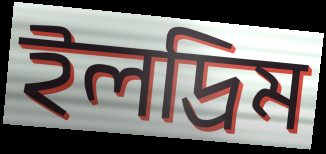
ইলদ্রিম